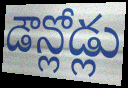
డౌన్లోడ్లు